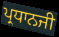
ਪ੍ਰਧਾਨਜੀ